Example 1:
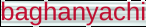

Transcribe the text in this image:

baghanyachi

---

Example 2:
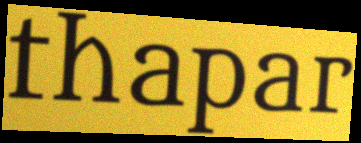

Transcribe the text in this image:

thapar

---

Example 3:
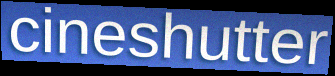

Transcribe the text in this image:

cineshutter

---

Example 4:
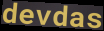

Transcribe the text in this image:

devdas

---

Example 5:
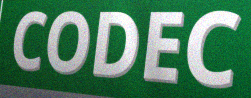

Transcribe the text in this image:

CODEC